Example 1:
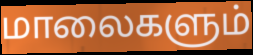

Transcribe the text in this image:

மாலைகளும்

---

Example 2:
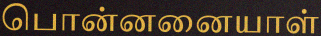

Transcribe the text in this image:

பொன்னனையாள்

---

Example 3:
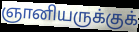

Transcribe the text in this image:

ஞானியருக்குக்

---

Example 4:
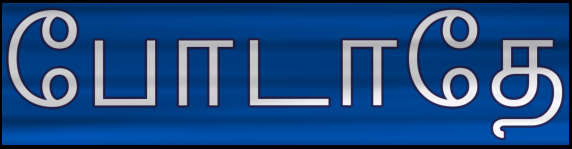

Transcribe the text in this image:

போடாதே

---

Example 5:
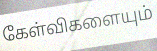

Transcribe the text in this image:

கேள்விகளையும்